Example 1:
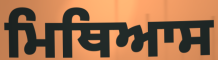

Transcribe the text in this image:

ਮਿਥਿਆਸ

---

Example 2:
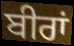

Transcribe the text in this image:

ਬੀਰਾਂ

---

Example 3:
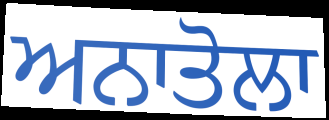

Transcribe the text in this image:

ਅਨਾਤੋਲਾ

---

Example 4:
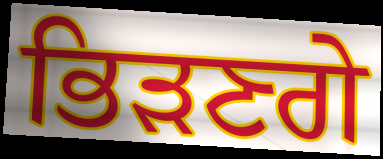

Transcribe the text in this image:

ਭਿੜਣਗੇ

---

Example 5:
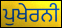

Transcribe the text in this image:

ਪੁਖੇਰਨੀ